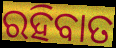
ରହିବାତ